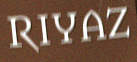
RIYAZ